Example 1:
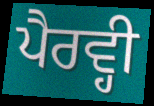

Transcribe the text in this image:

ਪੈਰਵ੍ਹੀ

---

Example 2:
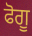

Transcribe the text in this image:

ਫੋਗੂ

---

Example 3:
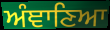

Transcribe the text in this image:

ਅੰਞਾਣਿਆ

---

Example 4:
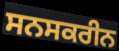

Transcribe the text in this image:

ਸਨਸਕਰੀਨ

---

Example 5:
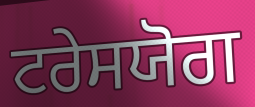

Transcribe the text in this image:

ਟਰੇਸਯੋਗ